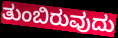
ತುಂಬಿರುವುದು